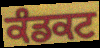
ਕੰਡਕਟ